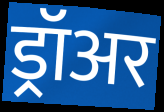
ड्रॉअर